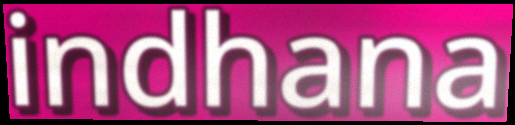
indhana